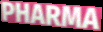
PHARMA